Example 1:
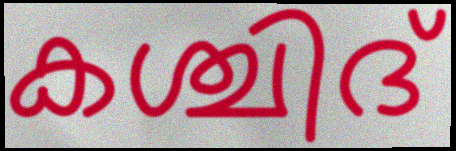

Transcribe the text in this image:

കശ്ചിദ്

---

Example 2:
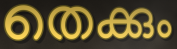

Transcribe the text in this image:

തെക്കും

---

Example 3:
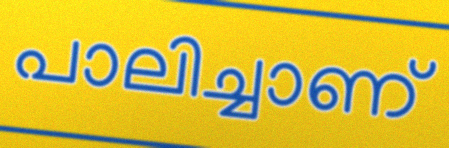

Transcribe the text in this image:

പാലിച്ചാണ്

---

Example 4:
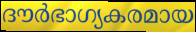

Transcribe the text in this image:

ദൗർഭാഗ്യകരമായ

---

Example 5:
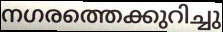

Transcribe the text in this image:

നഗരത്തെക്കുറിച്ചു